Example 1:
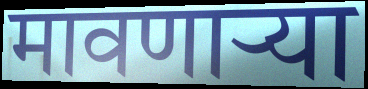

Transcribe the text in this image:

मावणाऱ्या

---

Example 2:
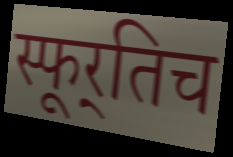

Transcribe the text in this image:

स्फूर्तिच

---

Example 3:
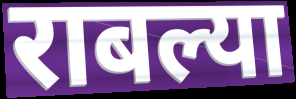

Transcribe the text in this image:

राबल्या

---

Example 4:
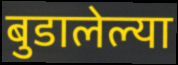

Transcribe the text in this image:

बुडालेल्या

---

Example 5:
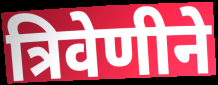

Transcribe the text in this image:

त्रिवेणीने